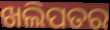
ଖଲିପତର